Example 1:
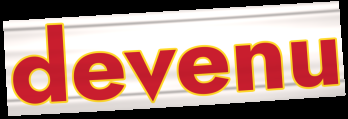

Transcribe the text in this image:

devenu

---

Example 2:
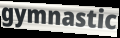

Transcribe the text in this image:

gymnastic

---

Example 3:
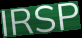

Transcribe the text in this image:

IRSP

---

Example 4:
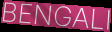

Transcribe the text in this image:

BENGALI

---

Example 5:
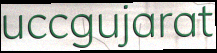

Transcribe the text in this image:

uccgujarat